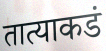
तात्याकडं